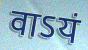
वाऽयं